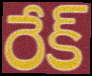
రేక్